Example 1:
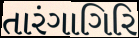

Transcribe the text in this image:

તારંગાગિરિ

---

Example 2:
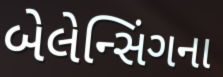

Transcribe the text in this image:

બેલેન્સિંગના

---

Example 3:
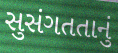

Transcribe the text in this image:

સુસંગતતાનું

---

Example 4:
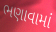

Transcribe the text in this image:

ભણાવામાં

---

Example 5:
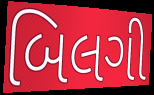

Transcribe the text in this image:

બિલગી